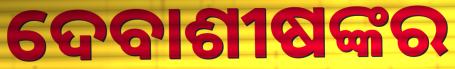
ଦେବାଶୀଷଙ୍କର